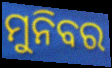
ମୁନିବର